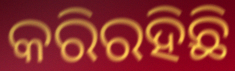
କରିରହିଛି